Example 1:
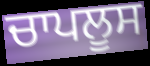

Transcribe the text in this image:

ਚਾਪਲੂਸ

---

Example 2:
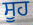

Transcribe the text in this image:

ਸੂਹ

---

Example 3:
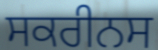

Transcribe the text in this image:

ਸਕਰੀਨਸ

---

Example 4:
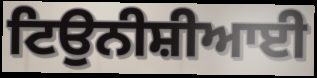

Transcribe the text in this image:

ਟਿਉਨੀਸ਼ੀਆਈ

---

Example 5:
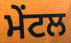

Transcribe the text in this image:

ਮੇਂਟਲ